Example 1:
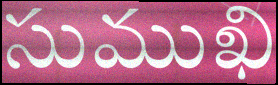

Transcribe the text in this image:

సుముఖి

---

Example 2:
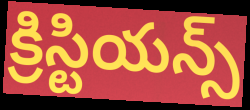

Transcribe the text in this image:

క్రిస్టియన్స్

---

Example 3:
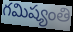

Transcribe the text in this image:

గమిష్యంతి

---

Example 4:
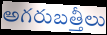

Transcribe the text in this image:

అగరుబత్తీలు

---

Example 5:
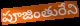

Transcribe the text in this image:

పూజింతురేని